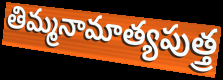
తిమ్మనామాత్యపుత్త్ర